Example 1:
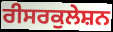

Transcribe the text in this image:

ਰੀਸਰਕੁਲੇਸ਼ਨ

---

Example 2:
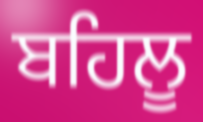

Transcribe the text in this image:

ਬਹਿਲੂ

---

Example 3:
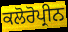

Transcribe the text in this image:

ਕਲੋਰੋਪ੍ਰੀਨ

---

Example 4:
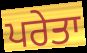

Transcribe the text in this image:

ਪਰੇਤਾ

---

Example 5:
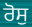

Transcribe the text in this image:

ਰੋਸੁ